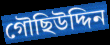
গৌছিউদ্দিন